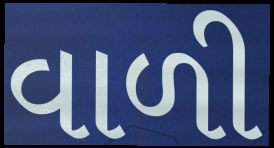
વાળી